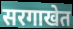
सरगाखेत